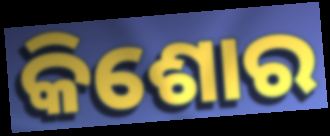
କିଶୋର